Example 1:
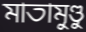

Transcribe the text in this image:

মাতামুণ্ডু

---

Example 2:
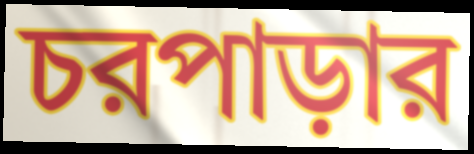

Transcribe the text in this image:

চরপাড়ার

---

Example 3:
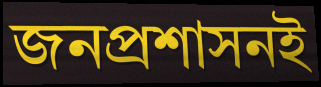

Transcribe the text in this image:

জনপ্রশাসনই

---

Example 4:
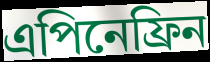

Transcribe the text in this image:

এপিনেফ্রিন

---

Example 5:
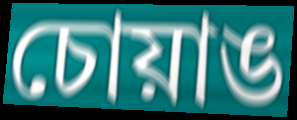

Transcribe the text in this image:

চোয়াঙ